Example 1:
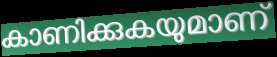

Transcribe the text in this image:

കാണിക്കുകയുമാണ്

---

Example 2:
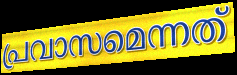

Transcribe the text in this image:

പ്രവാസമെന്നത്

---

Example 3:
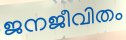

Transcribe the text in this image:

ജനജീവിതം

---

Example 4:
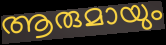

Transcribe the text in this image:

ആരുമായും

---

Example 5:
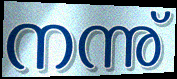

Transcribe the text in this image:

നന്നു്